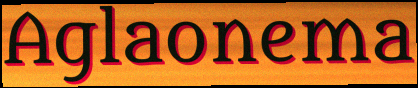
Aglaonema